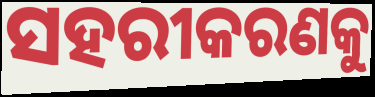
ସହରୀକରଣକୁ